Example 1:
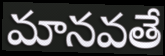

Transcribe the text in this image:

మానవతే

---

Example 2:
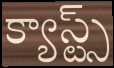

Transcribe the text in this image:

క్యాస్ట్స్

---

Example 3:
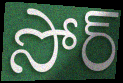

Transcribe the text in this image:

సోర్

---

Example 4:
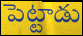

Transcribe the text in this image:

పెట్టాడు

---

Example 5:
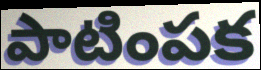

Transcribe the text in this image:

పాటింపక